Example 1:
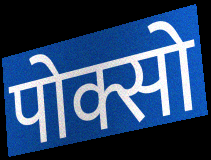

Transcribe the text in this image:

पोक्सो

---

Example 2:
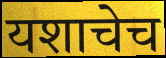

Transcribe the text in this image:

यशाचेच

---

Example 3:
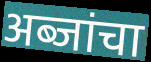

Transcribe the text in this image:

अब्जांचा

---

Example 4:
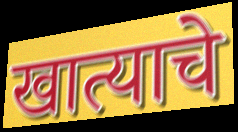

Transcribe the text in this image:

खात्याचे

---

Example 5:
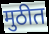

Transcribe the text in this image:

मुठीत